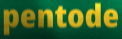
pentode